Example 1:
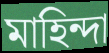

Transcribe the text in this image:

মাহিন্দা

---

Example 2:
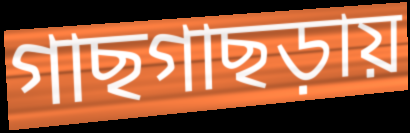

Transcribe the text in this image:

গাছগাছড়ায়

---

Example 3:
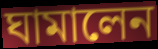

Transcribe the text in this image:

ঘামালেন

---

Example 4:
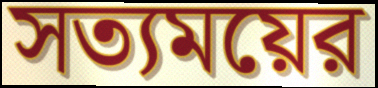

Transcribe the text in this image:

সত্যময়ের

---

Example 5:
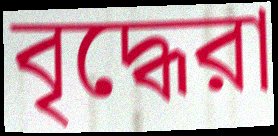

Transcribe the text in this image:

বৃদ্ধেরা